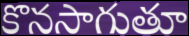
కొనసాగుతూ